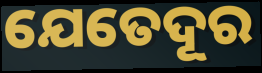
ଯେତେଦୂର